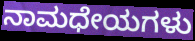
ನಾಮಧೇಯಗಳು